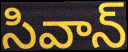
సివాన్